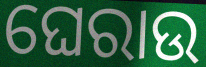
ଘେରାଉ